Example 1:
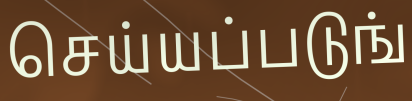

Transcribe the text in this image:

செய்யப்படுங்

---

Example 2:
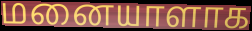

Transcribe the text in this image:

மனையாளாக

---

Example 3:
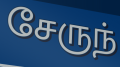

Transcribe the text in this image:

சேருந்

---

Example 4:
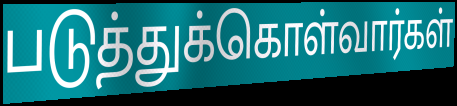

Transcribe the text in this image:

படுத்துக்கொள்வார்கள்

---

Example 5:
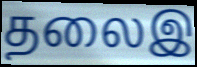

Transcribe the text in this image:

தலைஇ